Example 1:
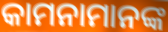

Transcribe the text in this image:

କାମନାମାନଙ୍କ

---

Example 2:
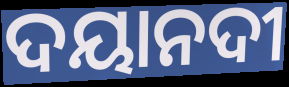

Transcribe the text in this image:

ଦୟାନଦୀ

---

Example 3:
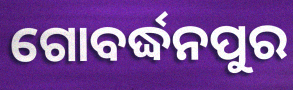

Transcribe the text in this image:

ଗୋବର୍ଦ୍ଧନପୁର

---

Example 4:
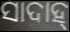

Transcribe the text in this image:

ସାଦାହ୍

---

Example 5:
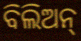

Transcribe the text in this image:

ବିଲିଅନ୍